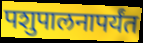
पशुपालनापर्यंत